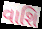
વાશિ